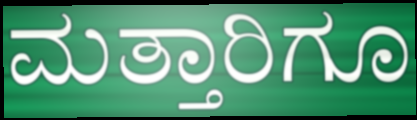
ಮತ್ತಾರಿಗೂ